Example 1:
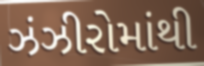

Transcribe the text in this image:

ઝંઝીરોમાંથી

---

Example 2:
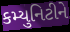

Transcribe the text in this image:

કમ્યુનિટીને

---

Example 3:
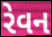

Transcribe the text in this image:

રેવન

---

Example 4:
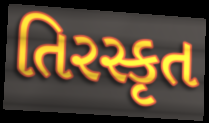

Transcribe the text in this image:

તિરસ્કૃત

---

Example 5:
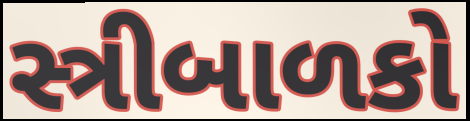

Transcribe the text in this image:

સ્ત્રીબાળકો